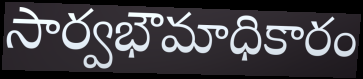
సార్వభౌమాధికారం